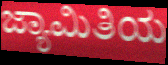
ಜ್ಯಾಮಿತಿಯ